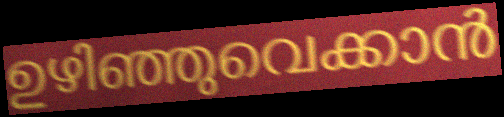
ഉഴിഞ്ഞുവെക്കാൻ